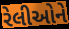
રેલીઓને